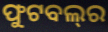
ଫୁଟବଲ୍‍ର